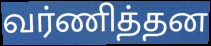
வர்ணித்தன